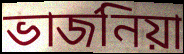
ভাৰ্জনিয়া